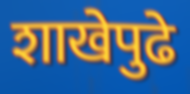
शाखेपुढे